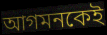
আগমনকেই